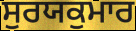
ਸੁਰਯਕੁਮਾਰ